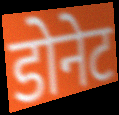
डोनेट